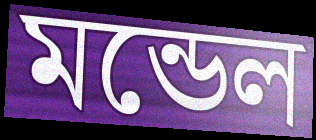
মন্ডেল